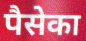
पैसेका